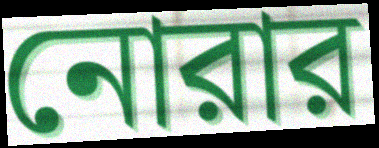
নোরার